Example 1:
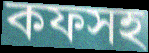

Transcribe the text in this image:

কফসহ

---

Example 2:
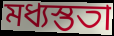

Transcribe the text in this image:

মধ্যস্ততা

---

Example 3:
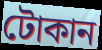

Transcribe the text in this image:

টোকান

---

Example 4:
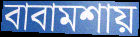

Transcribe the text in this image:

বাবামশায়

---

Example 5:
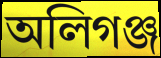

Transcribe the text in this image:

অলিগঞ্জ